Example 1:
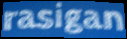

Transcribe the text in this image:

rasigan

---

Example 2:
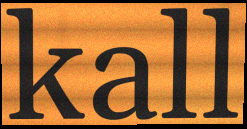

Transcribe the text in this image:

kall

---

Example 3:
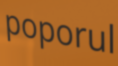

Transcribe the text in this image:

poporul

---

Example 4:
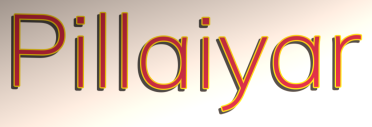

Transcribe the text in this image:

Pillaiyar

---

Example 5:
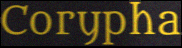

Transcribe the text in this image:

Corypha